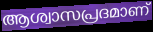
ആശ്വാസപ്രദമാണ്